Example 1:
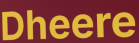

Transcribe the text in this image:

Dheere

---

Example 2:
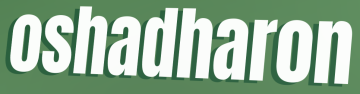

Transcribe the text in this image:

oshadharon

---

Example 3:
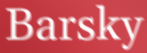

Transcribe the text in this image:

Barsky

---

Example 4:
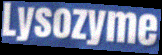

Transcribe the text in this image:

Lysozyme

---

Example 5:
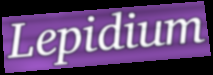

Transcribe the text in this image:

Lepidium